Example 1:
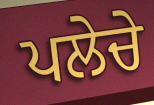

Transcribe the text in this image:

ਪਲੇਚੇ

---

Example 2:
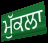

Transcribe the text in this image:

ਮੁੱਕਲਾ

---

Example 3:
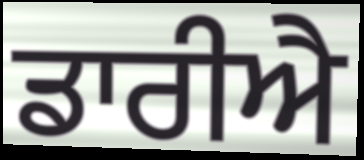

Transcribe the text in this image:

ਡਾਰੀਐ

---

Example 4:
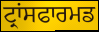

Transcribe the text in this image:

ਟ੍ਰਾਂਸਫਾਰਮਡ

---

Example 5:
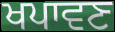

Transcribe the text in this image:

ਖਪਾਵਣ